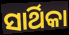
ସାର୍ଥିକା